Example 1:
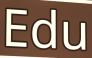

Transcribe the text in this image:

Edu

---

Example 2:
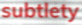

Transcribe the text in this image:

subtlety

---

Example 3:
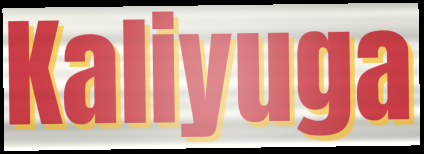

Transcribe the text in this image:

Kaliyuga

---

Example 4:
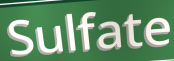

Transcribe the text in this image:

Sulfate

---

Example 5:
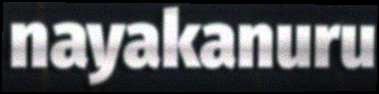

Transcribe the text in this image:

nayakanuru